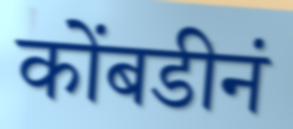
कोंबडीनं